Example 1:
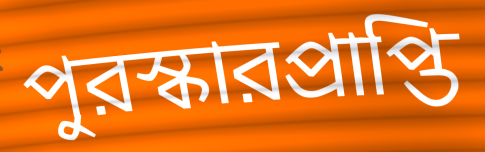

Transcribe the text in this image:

পুরস্কারপ্রাপ্তি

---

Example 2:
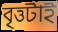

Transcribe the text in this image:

বৃত্তটাই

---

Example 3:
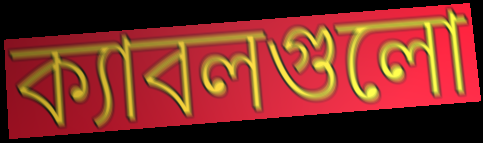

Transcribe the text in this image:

ক্যাবলগুলো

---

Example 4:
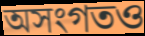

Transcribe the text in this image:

অসংগতও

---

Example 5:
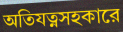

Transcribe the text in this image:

অতিযত্নসহকারে